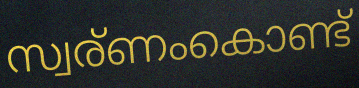
സ്വര്ണംകൊണ്ട്